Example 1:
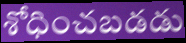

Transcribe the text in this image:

శోధించబడడు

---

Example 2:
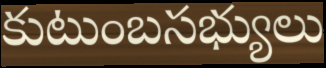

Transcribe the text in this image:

కుటుంబసభ్యులు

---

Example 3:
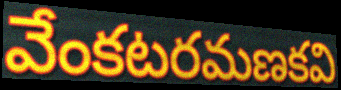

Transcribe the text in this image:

వేంకటరమణకవి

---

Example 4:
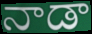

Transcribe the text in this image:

నాడా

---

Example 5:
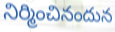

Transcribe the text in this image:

నిర్మించినందున